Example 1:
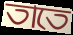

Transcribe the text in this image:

তাতে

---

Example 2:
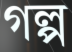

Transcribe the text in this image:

গল্প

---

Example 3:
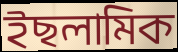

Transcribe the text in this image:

ইছলামিক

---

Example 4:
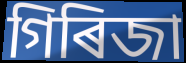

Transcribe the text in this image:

গিৰিজা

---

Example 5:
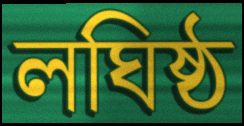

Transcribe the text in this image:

লঘিষ্ঠ